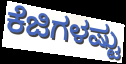
ಕೆಜಿಗಳಷ್ಟು